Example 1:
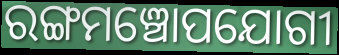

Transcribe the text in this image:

ରଙ୍ଗମଞ୍ଚୋପଯୋଗୀ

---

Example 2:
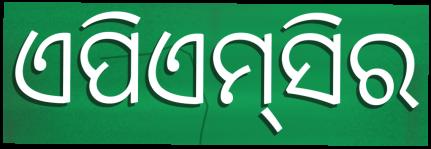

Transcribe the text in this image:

ଏପିଏମ୍‌ସିର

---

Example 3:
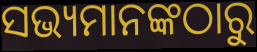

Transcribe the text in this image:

ସଭ୍ୟମାନଙ୍କଠାରୁ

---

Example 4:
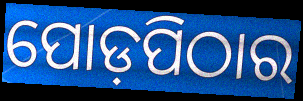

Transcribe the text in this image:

ପୋଡ଼ପିଠାର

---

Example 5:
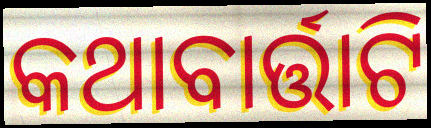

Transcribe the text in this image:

କଥାବାର୍ତ୍ତାଟି